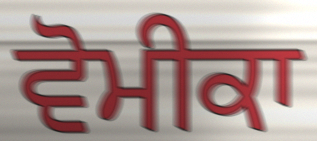
ਵੋਮੀਕਾ